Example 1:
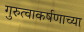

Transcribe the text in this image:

गुरुत्वाकर्षणाच्या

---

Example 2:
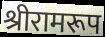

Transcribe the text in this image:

श्रीरामरूप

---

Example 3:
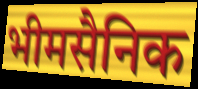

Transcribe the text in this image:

भीमसैनिक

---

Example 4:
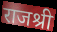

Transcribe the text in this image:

राजश्री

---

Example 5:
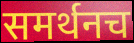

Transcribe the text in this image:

समर्थनच